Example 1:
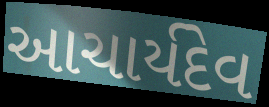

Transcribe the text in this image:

આચાર્યદેવ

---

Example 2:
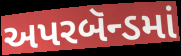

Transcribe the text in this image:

અપરબૅન્ડમાં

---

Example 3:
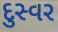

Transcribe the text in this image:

દુસ્વર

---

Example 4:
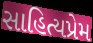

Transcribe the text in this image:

સાહિત્યપ્રેમ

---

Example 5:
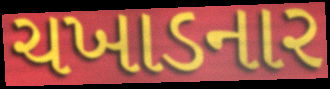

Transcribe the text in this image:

ચખાડનાર